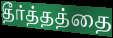
தீர்த்தத்தை